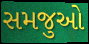
સમજુઓ